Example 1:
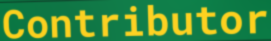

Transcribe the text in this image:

Contributor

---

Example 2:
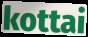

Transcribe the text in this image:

kottai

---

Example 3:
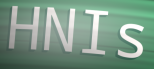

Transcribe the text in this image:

HNIs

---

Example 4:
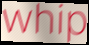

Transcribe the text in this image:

whip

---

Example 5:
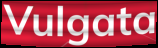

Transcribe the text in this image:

Vulgata